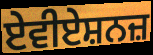
ਏਵੀਏਸ਼ਨਜ਼